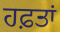
ਹਫ਼ਤਾਂ